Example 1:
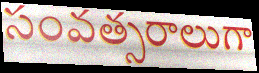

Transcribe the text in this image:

సంవత్సరాలుగా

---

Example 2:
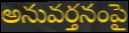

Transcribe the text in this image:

అనువర్తనంపై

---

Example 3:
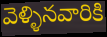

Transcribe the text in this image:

వెళ్ళినవారికి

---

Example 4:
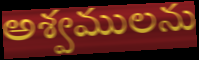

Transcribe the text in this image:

అశ్వములను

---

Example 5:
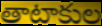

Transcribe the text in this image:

తాటాకుల